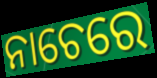
ନାଚେରେ